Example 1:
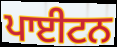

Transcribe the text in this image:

ਪਾਈਟਨ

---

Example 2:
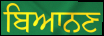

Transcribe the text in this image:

ਬਿਆਨਣ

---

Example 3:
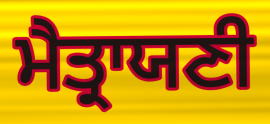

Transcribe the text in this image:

ਮੈਤ੍ਰਾਯਣੀ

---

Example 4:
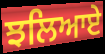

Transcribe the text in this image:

ਝਲਿਆਏ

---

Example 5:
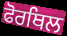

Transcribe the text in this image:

ਫੋਰਥਿਲ